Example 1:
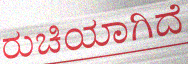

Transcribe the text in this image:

ರುಚಿಯಾಗಿದೆ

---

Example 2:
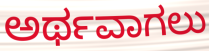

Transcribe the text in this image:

ಅರ್ಥವಾಗಲು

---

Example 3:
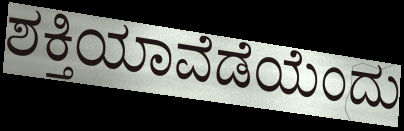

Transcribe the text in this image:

ಶಕ್ತಿಯಾವೆಡೆಯೆಂದು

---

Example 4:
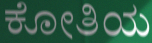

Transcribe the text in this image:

ಕೋತಿಯ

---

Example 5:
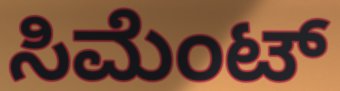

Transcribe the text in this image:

ಸಿಮೆಂಟ್